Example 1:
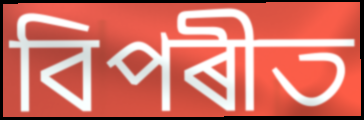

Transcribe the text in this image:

বিপৰীত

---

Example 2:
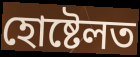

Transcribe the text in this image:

হোষ্টেলত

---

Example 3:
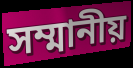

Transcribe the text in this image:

সম্মানীয়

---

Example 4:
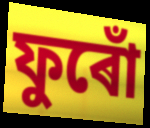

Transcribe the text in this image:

ফুৰোঁ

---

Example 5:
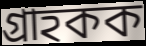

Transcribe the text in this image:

গ্ৰাহকক